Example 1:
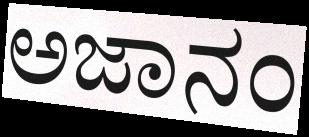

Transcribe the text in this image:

ಅಜಾನಂ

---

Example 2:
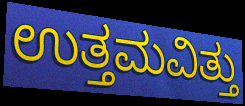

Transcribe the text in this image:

ಉತ್ತಮವಿತ್ತು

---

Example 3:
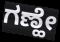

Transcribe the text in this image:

ಗಣ್ಹೇ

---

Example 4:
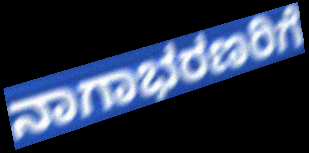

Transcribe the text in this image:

ನಾಗಾಭರಣರಿಗೆ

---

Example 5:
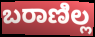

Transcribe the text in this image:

ಬರಾಣಿಲ್ಲ